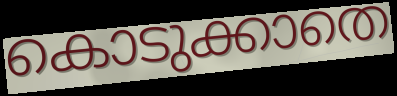
കൊടുക്കാതെ